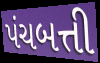
પંચબત્તી